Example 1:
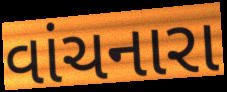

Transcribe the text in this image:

વાંચનારા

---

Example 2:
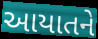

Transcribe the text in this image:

આયાતને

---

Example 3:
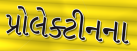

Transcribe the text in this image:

પ્રોલેક્ટીનના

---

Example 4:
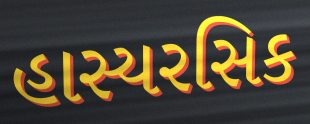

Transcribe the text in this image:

હાસ્યરસિક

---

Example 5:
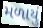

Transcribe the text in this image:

મળાયું